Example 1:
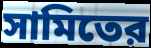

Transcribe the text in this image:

সামিতের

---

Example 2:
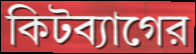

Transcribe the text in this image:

কিটব্যাগের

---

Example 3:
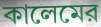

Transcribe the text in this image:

কালেমের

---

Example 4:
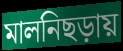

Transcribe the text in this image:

মালনিছড়ায়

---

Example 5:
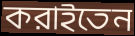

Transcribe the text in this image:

করাইতেন